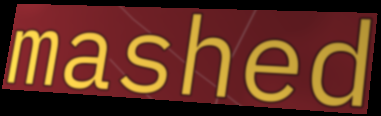
mashed